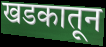
खडकातून